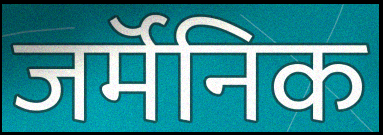
जर्मॅनिक